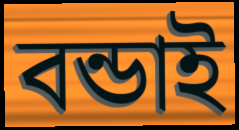
বন্ডাই